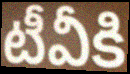
టీవీకి